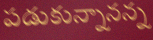
పడుకున్నానన్న